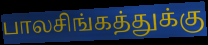
பாலசிங்கத்துக்கு